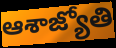
ఆశాజ్యోతి